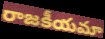
రాజకీయమా